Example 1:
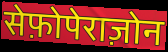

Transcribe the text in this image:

सेफ़ोपेराज़ोन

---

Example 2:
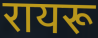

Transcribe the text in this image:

रायरू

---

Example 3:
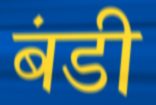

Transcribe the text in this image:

बंडी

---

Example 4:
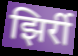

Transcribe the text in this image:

झिर्री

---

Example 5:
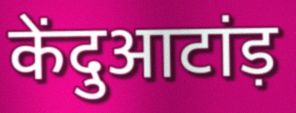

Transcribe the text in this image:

केंदुआटांड़